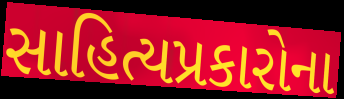
સાહિત્યપ્રકારોના